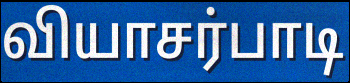
வியாசர்பாடி